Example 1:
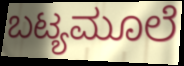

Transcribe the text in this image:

ಬಟ್ಯಮೂಲೆ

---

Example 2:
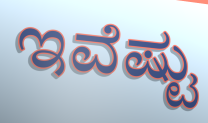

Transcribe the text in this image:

ಇವೆಷ್ಟು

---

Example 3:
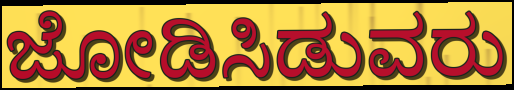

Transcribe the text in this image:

ಜೋಡಿಸಿಡುವರು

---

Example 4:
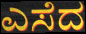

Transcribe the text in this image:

ಎಸೆದ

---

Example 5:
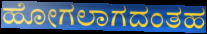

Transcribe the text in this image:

ಹೋಗಲಾಗದಂತಹ